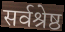
सर्वश्रेष्ठ